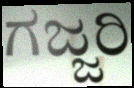
ಗಜ್ಜರಿ